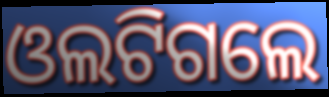
ଓଲଟିଗଲେ